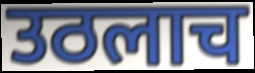
उठलाच